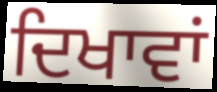
ਦਿਖਾਵਾਂ